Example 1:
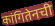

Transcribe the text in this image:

कांगितेनची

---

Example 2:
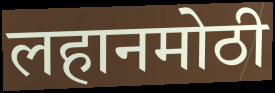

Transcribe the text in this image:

लहानमोठी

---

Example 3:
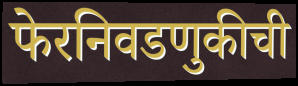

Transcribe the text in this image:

फेरनिवडणुकीची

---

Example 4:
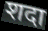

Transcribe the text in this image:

शदा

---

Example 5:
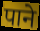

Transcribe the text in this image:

पाने